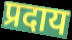
प्रदाय